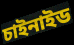
চাইনাইড